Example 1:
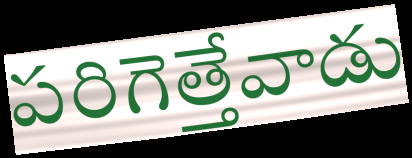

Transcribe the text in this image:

పరిగెత్తేవాడు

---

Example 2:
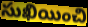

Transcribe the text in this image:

సుఖియించి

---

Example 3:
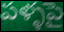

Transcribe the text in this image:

పళ్ళపై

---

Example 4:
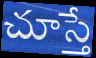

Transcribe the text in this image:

చూస్తే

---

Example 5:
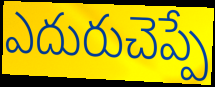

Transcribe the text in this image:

ఎదురుచెప్పే